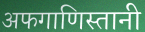
अफगाणिस्तानी